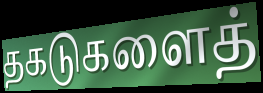
தகடுகளைத்